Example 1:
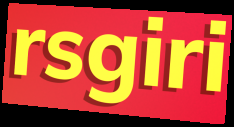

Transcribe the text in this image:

rsgiri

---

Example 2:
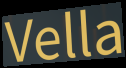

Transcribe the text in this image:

Vella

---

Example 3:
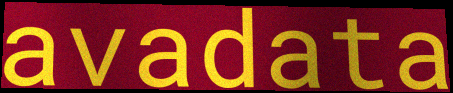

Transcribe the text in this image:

avadata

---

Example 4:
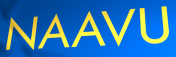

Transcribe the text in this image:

NAAVU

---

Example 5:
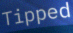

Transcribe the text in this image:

Tipped